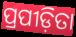
ପ୍ରପୀଡ଼ିତା